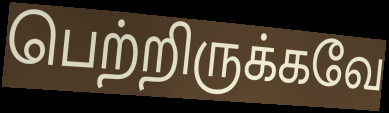
பெற்றிருக்கவே